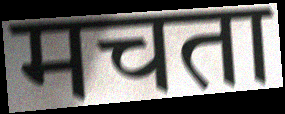
मचता